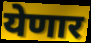
येणार